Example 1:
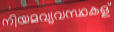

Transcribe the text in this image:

നിയമവ്യവസ്ഥകള്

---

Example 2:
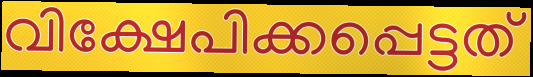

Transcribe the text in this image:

വിക്ഷേപിക്കപ്പെട്ടത്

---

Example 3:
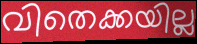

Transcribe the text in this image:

വിതെക്കയില്ല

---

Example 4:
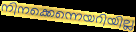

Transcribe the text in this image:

നിനക്കെന്നെയറിയില്ല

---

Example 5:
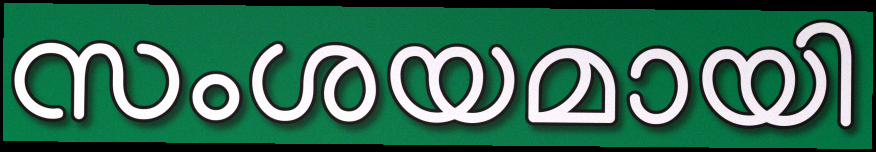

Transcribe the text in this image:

സംശയമായി